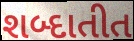
શબ્દાતીત